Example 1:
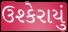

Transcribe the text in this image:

ઉશ્કેરાયું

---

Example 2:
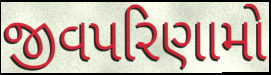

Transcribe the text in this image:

જીવપરિણામો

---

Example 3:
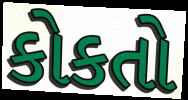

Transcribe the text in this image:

કોકતો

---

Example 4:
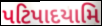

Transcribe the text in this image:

પટિપાદયામિ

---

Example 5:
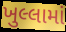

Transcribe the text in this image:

ખુલ્લામાં